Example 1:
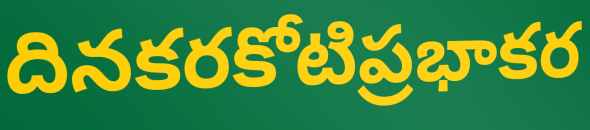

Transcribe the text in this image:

దినకరకోటిప్రభాకర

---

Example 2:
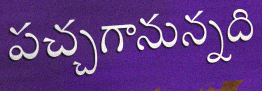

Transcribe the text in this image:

పచ్చగానున్నది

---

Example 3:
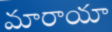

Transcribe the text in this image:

మారాయా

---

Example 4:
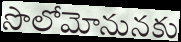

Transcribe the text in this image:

సొలోమోనునకు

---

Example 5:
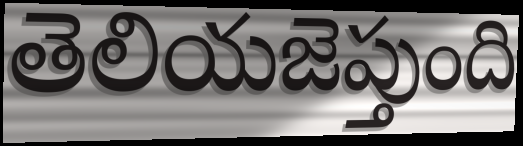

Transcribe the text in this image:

తెలియజెప్తుంది